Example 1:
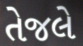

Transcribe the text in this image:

તેજલે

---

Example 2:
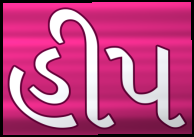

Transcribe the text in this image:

હીપ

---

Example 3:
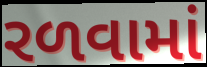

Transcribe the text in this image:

રળવામાં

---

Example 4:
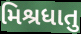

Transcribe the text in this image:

મિશ્રધાતુ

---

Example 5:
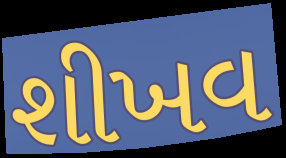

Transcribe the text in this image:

શીખવ